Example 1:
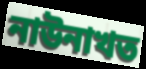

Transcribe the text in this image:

নাউনাখত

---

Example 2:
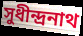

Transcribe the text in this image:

সুধীন্দ্রনাথ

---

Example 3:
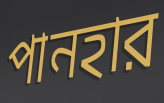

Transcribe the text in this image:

পানহার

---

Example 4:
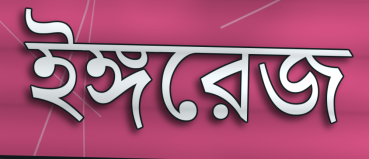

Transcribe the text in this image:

ইঙ্গরেজ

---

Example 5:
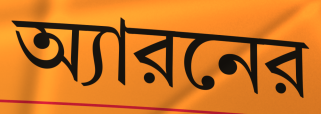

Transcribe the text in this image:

অ্যারনের